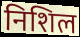
निशिल